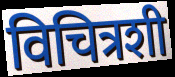
विचित्रशी